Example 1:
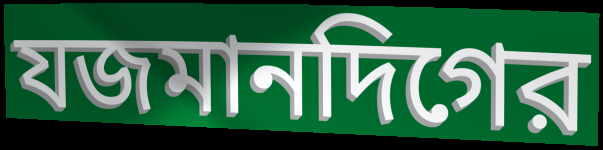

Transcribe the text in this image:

যজমানদিগের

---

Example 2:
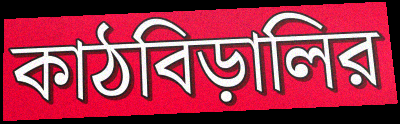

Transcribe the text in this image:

কাঠবিড়ালির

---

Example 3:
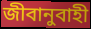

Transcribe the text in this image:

জীবানুবাহী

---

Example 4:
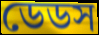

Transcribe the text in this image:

ডেডস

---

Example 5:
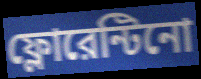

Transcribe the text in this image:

ফ্লোরেন্টিনো